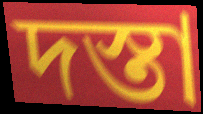
দস্তা